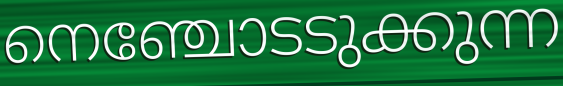
നെഞ്ചോടടുക്കുന്ന